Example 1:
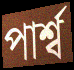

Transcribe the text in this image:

পাৰ্শ্ব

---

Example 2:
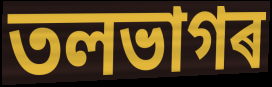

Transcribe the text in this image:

তলভাগৰ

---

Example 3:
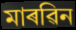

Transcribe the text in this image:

মাৰৱিন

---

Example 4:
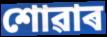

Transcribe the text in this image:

শোৱাৰ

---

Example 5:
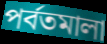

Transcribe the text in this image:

পৰ্বতমালা